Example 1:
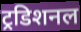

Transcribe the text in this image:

ट्रडिशनल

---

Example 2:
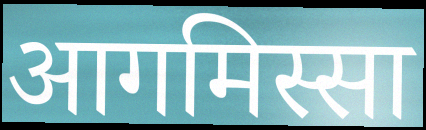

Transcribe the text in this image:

आगमिस्सा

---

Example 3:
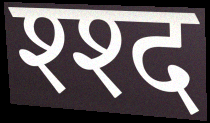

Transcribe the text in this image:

श्श्द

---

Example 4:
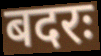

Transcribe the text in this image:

बदरः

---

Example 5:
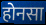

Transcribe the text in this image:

होनसा